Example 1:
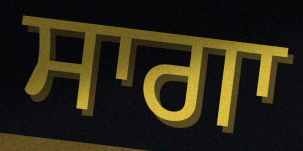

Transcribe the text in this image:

ਸਾਗਾ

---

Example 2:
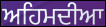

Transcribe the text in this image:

ਅਹਿਮਦੀਆ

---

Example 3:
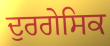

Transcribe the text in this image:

ਦੁਰਗੇਸਿਕ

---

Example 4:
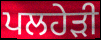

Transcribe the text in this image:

ਪਲਹੇੜੀ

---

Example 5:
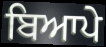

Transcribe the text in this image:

ਬਿਆਪੇ